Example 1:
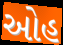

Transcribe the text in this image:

ઓહ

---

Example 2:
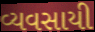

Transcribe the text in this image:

વ્યવસાયી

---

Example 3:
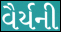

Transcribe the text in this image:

વૈર્યની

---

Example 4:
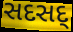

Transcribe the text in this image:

સદસદ્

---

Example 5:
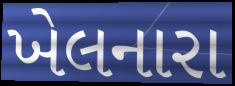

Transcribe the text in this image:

ખેલનારા